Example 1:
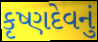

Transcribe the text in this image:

કૃષ્ણદેવનું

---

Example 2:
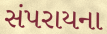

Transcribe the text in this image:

સંપરાયના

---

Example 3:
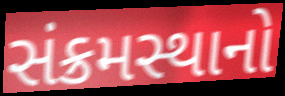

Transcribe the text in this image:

સંક્રમસ્થાનો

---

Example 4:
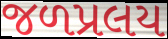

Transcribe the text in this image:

જળપ્રલય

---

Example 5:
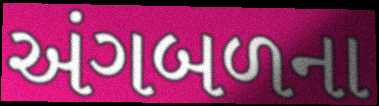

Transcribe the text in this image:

અંગબળના